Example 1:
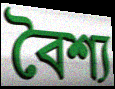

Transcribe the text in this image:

বৈশ্য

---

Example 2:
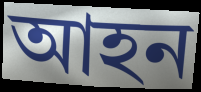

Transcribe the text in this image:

আহন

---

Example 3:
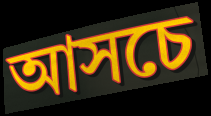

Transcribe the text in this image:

আসচে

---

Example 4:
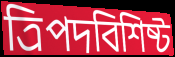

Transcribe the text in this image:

ত্রিপদবিশিষ্ট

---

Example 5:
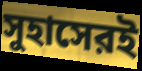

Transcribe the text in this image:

সুহাসেরই